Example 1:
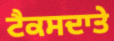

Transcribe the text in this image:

ਟੈਕਸਦਾਤੇ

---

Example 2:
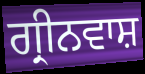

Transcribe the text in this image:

ਗ੍ਰੀਨਵਾਸ਼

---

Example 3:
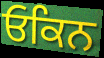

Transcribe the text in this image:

ਓਕਿਨ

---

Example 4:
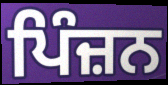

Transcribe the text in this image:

ਪਿੰਜ਼ਨ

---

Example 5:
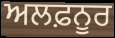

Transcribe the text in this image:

ਅਲਫ਼ਨੂਰ